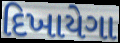
દિખાયેગા